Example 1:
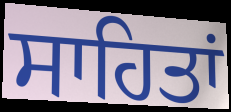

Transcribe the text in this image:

ਸਾਹਿਤਾਂ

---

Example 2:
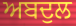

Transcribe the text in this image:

ਅਬਦੁਲ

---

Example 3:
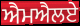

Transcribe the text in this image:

ਐਮਐਲਏ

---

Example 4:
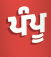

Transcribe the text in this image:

ਪੰਪੂ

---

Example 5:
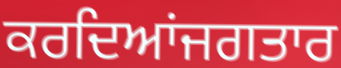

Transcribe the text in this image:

ਕਰਦਿਆਂਜਗਤਾਰ